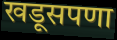
खडूसपणा